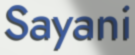
Sayani